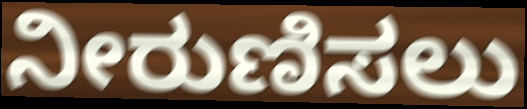
ನೀರುಣಿಸಲು